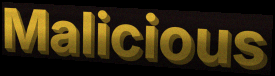
Malicious